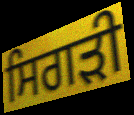
ਸਿਗੜੀ